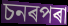
চনৰপৰা